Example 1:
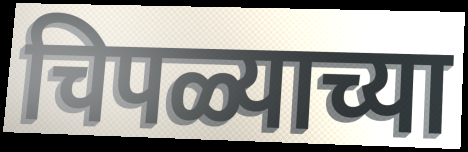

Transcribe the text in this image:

चिपळ्याच्या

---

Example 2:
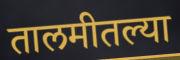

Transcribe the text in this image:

तालमीतल्या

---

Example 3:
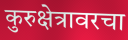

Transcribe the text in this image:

कुरुक्षेत्रावरचा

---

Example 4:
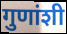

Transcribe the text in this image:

गुणांशी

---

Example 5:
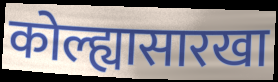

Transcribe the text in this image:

कोल्ह्यासारखा